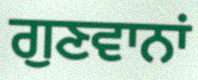
ਗੁਣਵਾਨਾਂ